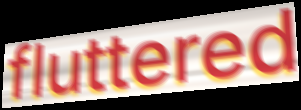
fluttered